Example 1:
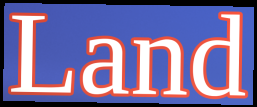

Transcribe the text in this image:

Land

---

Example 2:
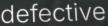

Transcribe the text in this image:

defective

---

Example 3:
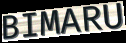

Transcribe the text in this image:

BIMARU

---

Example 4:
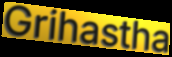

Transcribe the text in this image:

Grihastha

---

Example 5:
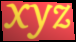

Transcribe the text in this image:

xyz